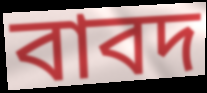
বাবদ